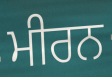
ਮੀਰਨ